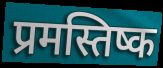
प्रमस्तिष्क